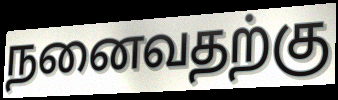
நனைவதற்கு